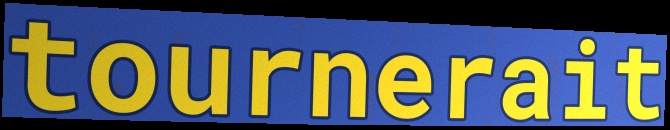
tournerait